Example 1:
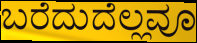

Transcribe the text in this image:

ಬರೆದುದೆಲ್ಲವೂ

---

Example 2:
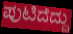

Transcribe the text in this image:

ಪುಟಿದೆದ್ದು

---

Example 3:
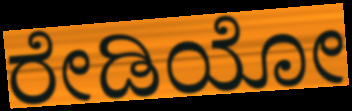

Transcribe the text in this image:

ರೇಡಿಯೋ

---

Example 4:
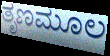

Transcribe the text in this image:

ತೃಣಮೂಲ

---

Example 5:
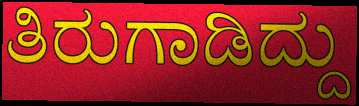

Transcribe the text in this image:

ತಿರುಗಾಡಿದ್ದು